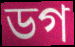
ডগ